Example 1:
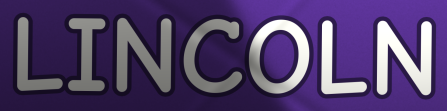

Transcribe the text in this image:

LINCOLN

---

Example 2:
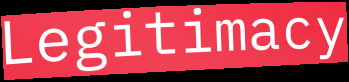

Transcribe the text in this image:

Legitimacy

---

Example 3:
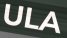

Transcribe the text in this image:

ULA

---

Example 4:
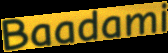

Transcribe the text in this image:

Baadami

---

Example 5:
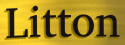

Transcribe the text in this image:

Litton